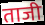
ताजी